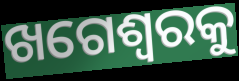
ଖଗେଶ୍ୱରକୁ